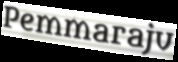
Pemmaraju